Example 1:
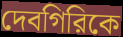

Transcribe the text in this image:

দেবগিরিকে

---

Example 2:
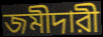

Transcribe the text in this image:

জমীদারী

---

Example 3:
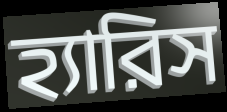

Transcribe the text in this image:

হ্যারিস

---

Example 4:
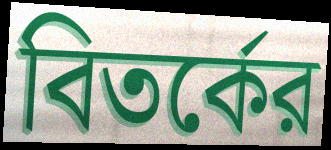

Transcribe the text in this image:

বিতর্কের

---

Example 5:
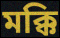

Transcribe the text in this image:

মক্কি